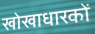
खोखाधारकों